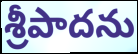
శ్రీపాదను